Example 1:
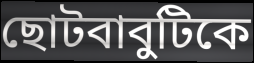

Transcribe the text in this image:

ছোটবাবুটিকে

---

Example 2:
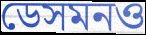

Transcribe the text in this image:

ডেসমনও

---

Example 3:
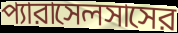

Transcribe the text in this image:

প্যারাসেলসাসের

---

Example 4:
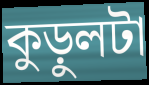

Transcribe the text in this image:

কুড়ুলটা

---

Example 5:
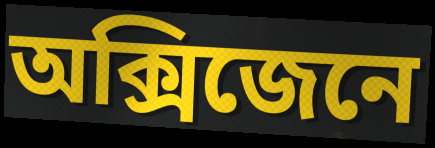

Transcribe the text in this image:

অক্সিজেনে